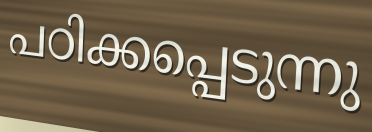
പഠിക്കപ്പെടുന്നു